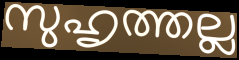
സുഹൃത്തല്ല